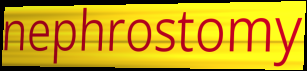
nephrostomy